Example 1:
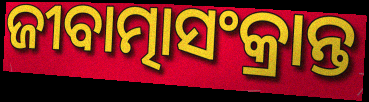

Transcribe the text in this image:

ଜୀବାତ୍ମାସଂକ୍ରାନ୍ତ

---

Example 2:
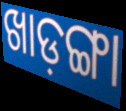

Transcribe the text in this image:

ଖାଡ଼ଙ୍ଗା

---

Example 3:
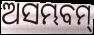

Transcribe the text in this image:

ଅସମ୍ଭବମ୍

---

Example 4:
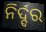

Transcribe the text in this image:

ନିର୍ଦ୍ଦର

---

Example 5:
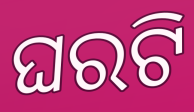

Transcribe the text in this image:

ଘରଟି